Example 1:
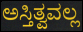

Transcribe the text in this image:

ಅಸ್ತಿತ್ವವಲ್ಲ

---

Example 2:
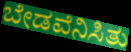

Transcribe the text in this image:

ಬೇಡವೆನಿಸಿತು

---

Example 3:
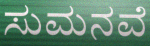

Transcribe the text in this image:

ಸುಮನವೆ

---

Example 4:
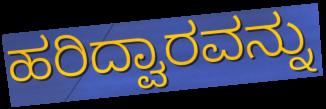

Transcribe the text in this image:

ಹರಿದ್ವಾರವನ್ನು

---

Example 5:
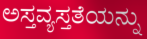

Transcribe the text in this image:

ಅಸ್ತವ್ಯಸ್ತತೆಯನ್ನು